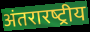
अंतरारष्ट्रीय